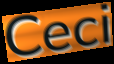
Ceci